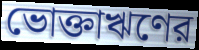
ভোক্তাঋণের